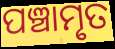
ପଞ୍ଚାମୃତ